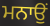
ਮਨਾਉਂ